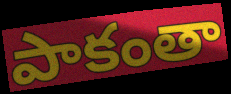
పాకంతా